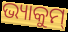
ଭ୍ୟାକୁମ୍